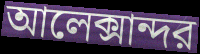
আলেক্সান্দর